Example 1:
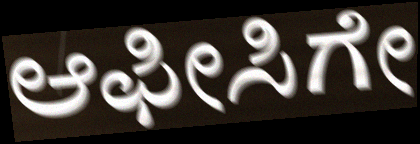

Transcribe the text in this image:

ಆಫೀಸಿಗೇ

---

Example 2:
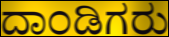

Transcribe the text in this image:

ದಾಂಡಿಗರು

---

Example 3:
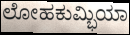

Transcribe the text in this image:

ಲೋಹಕುಮ್ಭಿಯಾ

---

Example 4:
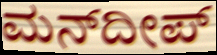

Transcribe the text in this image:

ಮನ್‍ದೀಪ್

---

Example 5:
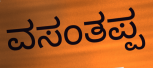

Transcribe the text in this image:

ವಸಂತಪ್ಪ